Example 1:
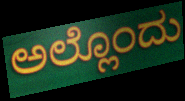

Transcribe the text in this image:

ಅಲ್ಲೊಂದು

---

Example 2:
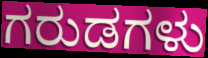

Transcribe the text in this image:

ಗರುಡಗಳು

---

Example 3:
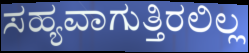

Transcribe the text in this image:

ಸಹ್ಯವಾಗುತ್ತಿರಲಿಲ್ಲ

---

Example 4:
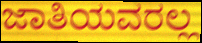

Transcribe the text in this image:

ಜಾತಿಯವರಲ್ಲ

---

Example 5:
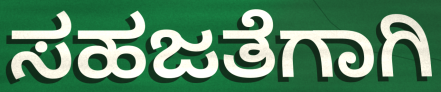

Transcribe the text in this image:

ಸಹಜತೆಗಾಗಿ